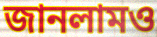
জানলামও